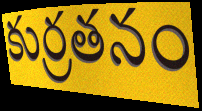
కుర్రతనం